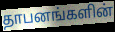
தாபனங்களின்